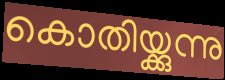
കൊതിയ്ക്കുന്നു